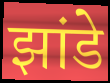
झांडे